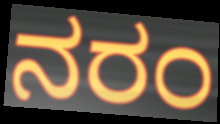
ನರಂ